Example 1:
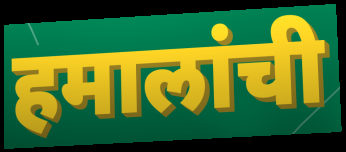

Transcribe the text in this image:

हमालांची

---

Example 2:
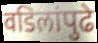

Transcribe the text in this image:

वडिलांपुढे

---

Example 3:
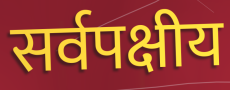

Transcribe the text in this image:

सर्वपक्षीय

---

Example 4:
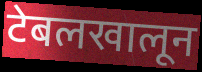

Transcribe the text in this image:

टेबलखालून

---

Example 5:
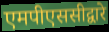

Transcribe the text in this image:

एमपीएससीद्वारे